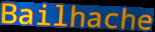
Bailhache